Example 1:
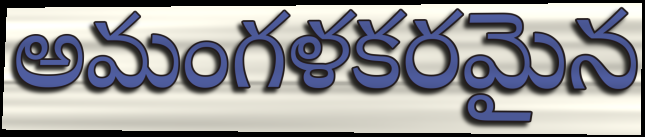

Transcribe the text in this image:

అమంగళకరమైన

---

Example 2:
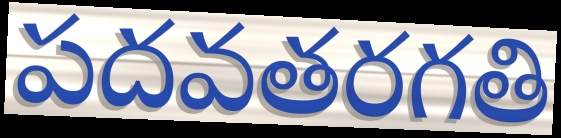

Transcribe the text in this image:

పదవతరగతి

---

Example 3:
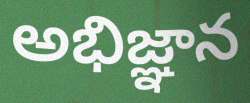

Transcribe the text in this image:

అభిజ్ఞాన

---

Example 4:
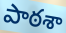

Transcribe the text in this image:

పాఠశా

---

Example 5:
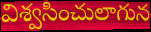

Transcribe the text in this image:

విశ్వసించులాగున